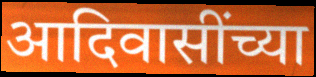
आदिवासींच्या